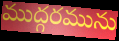
ముద్గరమును